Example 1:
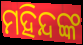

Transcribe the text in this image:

ମହିନ୍ଦଙ୍କ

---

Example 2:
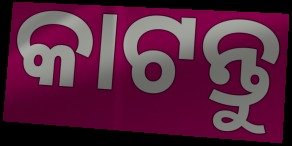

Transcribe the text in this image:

କାଟନ୍ତୁ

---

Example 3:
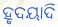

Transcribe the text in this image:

ହୃଦୟାଦି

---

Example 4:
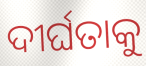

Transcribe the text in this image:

ଦୀର୍ଘତାକୁ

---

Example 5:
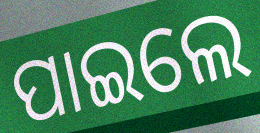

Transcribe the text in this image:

ପାଇଲେ